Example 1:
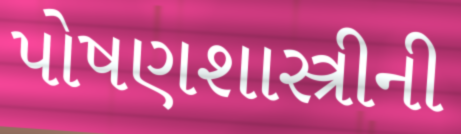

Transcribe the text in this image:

પોષણશાસ્ત્રીની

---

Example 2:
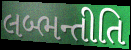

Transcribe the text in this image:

લબ્ભન્તીતિ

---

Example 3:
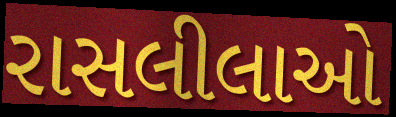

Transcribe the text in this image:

રાસલીલાઓ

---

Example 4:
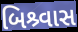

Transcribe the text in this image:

બિશ્ર્વાસ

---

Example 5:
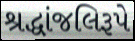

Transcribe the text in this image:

શ્રદ્ધાંજલિરૂપે